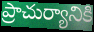
ప్రాచుర్యానికి